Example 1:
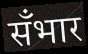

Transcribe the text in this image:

सँभार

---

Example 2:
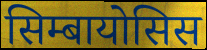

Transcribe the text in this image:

सिम्बायोसिस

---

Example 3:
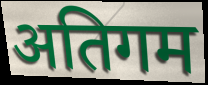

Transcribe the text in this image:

अतिगम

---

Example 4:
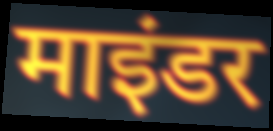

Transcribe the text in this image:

माइंडर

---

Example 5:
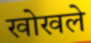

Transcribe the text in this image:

खोखले